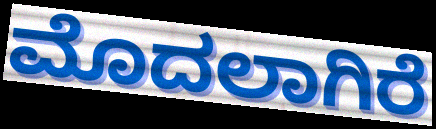
ಮೊದಲಾಗಿರೆ